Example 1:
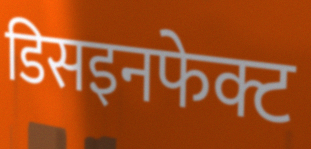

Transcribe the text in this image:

डिसइनफेक्ट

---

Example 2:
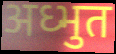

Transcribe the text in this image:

अध्भुत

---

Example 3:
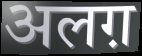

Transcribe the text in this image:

अलग़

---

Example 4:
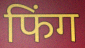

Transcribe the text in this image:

फिंग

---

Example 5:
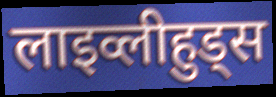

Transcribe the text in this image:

लाइव्लीहुड्स